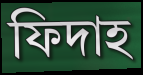
ফিদাহ